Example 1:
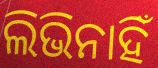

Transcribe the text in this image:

ଲିଭିନାହିଁ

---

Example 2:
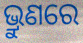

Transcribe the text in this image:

ଭ୍ରୁଣରେ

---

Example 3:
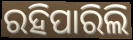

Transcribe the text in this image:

ରହିପାରିଲି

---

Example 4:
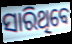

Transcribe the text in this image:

ସାରିଥିବେ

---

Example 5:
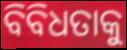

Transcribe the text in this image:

ବିବିଧତାକୁ